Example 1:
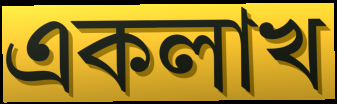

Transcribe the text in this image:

একলাখ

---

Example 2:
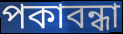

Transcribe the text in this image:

পকাবন্ধা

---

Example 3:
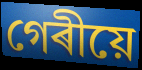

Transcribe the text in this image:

গেৰীয়ে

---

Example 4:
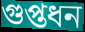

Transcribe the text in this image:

গুপ্তধন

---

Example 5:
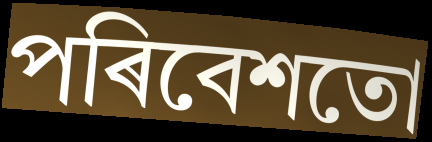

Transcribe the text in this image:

পৰিবেশতো